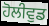
ਹੋਲੀਵੁਡ